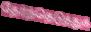
தேர்ந்தெடுத்துக்